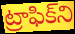
ట్రాఫిక్‌ని